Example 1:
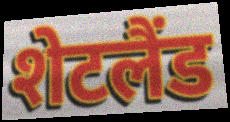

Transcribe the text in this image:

शेटलैंड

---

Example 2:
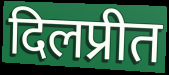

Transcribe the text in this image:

दिलप्रीत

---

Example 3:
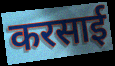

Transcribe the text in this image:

करसाई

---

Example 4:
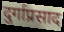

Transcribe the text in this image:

दुर्गाप्रसाद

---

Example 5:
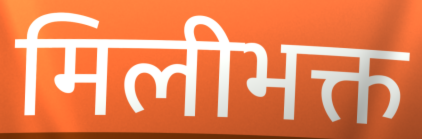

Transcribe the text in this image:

मिलीभक्त